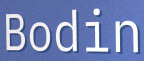
Bodin